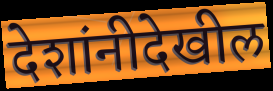
देशांनीदेखील